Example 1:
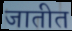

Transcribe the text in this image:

जातीत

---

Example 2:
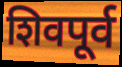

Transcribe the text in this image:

शिवपूर्व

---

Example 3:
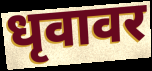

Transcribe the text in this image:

धृवावर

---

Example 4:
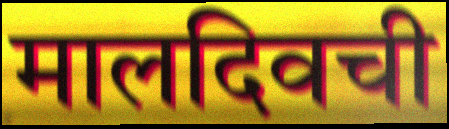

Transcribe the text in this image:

मालदिवची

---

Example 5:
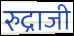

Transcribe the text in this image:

रुद्राजी